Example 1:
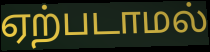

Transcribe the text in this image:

ஏற்படாமல்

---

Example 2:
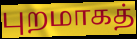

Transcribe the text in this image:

புறமாகத்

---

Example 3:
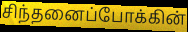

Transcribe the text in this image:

சிந்தனைப்போக்கின்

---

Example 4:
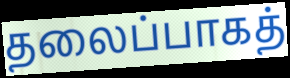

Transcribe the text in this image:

தலைப்பாகத்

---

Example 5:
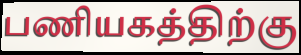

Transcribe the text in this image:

பணியகத்திற்கு